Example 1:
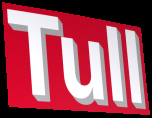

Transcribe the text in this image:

Tull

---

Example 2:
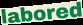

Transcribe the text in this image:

labored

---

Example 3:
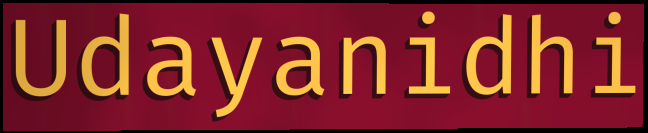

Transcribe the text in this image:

Udayanidhi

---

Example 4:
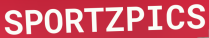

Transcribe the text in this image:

SPORTZPICS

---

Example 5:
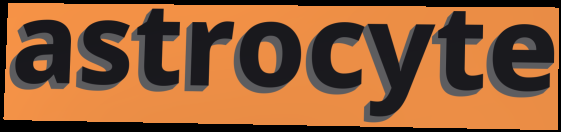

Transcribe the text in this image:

astrocyte